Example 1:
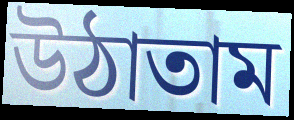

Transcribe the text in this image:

উঠাতাম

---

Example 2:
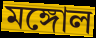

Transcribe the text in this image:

মঙ্গোল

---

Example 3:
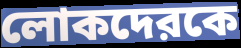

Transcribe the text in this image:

লোকদেরকে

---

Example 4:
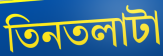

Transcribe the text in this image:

তিনতলাটা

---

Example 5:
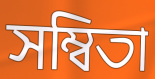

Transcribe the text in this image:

সম্বিতা